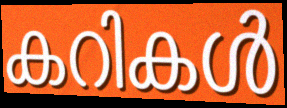
കറികൾ